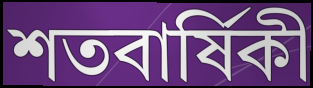
শতবার্ষিকী